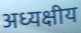
अध्यक्षीय